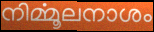
നിൎമ്മൂലനാശം